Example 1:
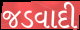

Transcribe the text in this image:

જડવાદી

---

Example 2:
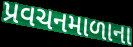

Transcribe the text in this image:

પ્રવચનમાળાના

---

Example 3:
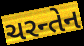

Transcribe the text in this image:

ચરન્તેન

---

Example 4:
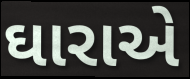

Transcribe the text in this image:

ઘારાએ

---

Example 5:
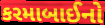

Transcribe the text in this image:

કરમાબાઈનો